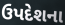
ઉપદેશના